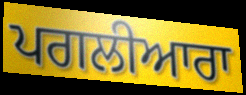
ਪਗਲੀਆਰਾ